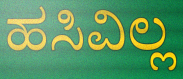
ಹಸಿವಿಲ್ಲ